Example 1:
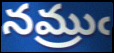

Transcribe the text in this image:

నమ్రుఁ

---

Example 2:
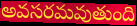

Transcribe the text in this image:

అవసరమవుతుంది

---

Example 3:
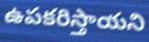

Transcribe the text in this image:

ఉపకరిస్తాయని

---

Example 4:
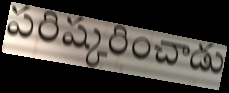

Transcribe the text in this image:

పరిష్కరించాడు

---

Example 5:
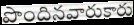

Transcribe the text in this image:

పొందినవారుకారు